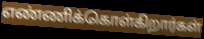
எண்ணிக்கொள்கிறார்கள்